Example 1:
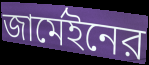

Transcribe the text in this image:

জার্মেইনের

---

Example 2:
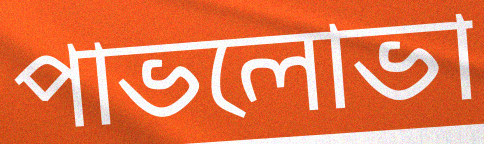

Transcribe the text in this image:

পাভলোভা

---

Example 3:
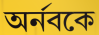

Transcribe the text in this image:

অর্নবকে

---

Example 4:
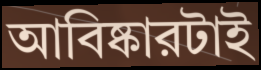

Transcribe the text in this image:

আবিষ্কারটাই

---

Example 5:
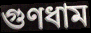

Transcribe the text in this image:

গুণধাম